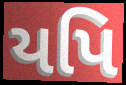
યપિ